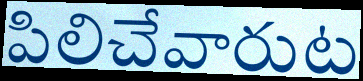
పిలిచేవారుట